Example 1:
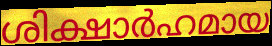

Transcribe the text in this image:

ശിക്ഷാർഹമായ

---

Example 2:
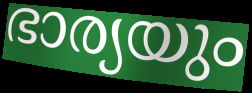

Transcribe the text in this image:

ഭാര്യയും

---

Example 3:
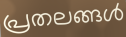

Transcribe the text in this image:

പ്രതലങ്ങൾ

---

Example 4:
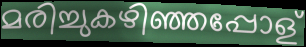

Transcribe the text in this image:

മരിച്ചുകഴിഞ്ഞപ്പോള്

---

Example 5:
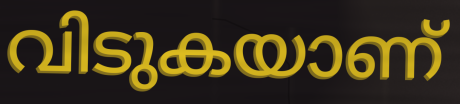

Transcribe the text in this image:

വിടുകയാണ്